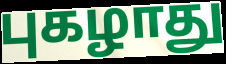
புகழாது